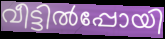
വീട്ടിൽപ്പോയി